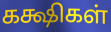
கக்ஷிகள்